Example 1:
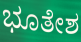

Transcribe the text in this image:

ಭೂತೇಶ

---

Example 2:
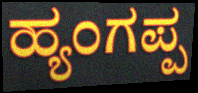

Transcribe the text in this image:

ಹ್ಯಂಗಪ್ಪ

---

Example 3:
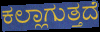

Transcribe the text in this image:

ಕಲ್ಲಾಗುತ್ತದೆ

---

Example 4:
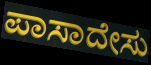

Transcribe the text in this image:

ಪಾಸಾದೇಸು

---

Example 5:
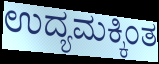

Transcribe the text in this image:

ಉದ್ಯಮಕ್ಕಿಂತ